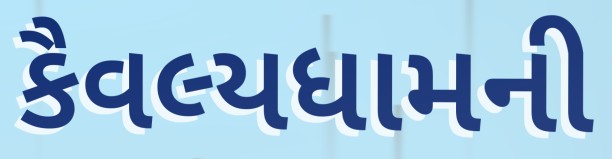
કૈવલ્યધામની